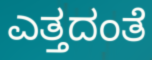
ಎತ್ತದಂತೆ